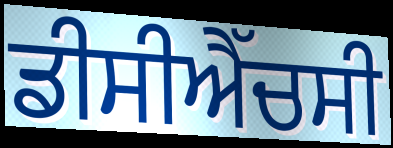
ਡੀਸੀਐੱਚਸੀ